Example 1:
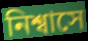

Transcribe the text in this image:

নিশ্বাসে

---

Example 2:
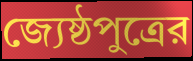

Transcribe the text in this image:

জ্যেষ্ঠপুত্রের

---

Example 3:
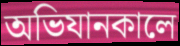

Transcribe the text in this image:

অভিযানকালে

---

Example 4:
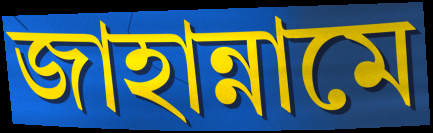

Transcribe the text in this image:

জাহান্নামে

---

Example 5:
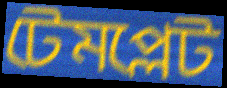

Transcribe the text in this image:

টেমপ্লেট